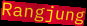
Rangjung